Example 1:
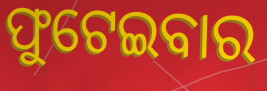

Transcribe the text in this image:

ଫୁଟେଇବାର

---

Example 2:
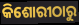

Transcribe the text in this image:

କିଶୋରୀଠାରୁ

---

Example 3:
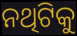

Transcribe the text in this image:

ନଥିଟିକୁ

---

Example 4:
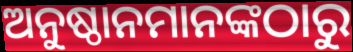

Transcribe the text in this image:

ଅନୁଷ୍ଠାନମାନଙ୍କଠାରୁ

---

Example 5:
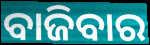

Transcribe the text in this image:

ବାଜିବାର